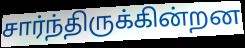
சார்ந்திருக்கின்றன